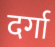
दर्गा